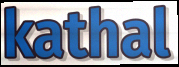
kathal